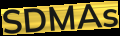
SDMAs